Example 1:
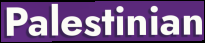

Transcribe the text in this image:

Palestinian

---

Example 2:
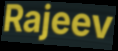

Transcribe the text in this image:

Rajeev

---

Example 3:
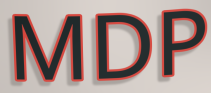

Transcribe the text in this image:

MDP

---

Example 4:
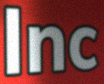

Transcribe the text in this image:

Inc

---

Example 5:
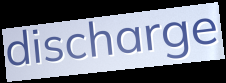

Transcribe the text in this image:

discharge